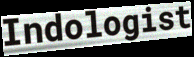
Indologist